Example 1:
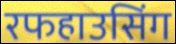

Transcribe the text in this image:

रफहाउसिंग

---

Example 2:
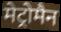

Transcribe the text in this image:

मेट्रोमैन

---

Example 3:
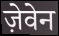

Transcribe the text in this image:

ज़ेवेन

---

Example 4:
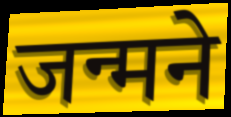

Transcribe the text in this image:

जन्मने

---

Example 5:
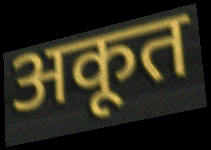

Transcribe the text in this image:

अकूत